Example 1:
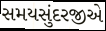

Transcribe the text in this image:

સમયસુંદરજીએ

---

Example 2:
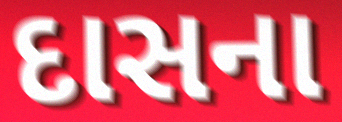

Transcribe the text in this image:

દાસના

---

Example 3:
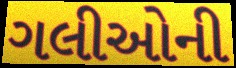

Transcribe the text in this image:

ગલીઓની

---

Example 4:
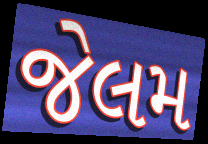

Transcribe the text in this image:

જેલમ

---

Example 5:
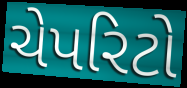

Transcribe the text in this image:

ચેપરિટો